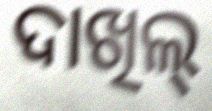
ଦାଖିଲ୍